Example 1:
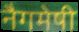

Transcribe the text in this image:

नैगमेषी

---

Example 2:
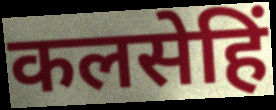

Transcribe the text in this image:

कलसेहिं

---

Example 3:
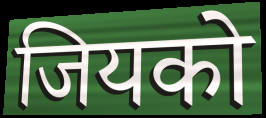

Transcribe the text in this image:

जियको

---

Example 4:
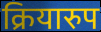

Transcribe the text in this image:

क्रियारुप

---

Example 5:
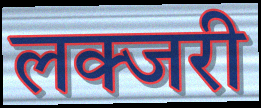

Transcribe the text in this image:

लक्जरी